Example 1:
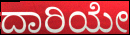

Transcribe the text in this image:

ದಾರಿಯೇ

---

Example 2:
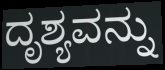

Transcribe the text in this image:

ದೃಶ್ಯವನ್ನು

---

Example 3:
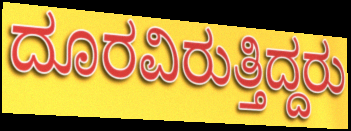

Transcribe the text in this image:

ದೂರವಿರುತ್ತಿದ್ದರು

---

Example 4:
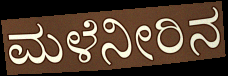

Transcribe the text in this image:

ಮಳೆನೀರಿನ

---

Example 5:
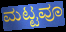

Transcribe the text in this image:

ಮಟ್ಟವೂ